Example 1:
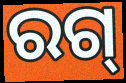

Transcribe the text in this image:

ରଗ୍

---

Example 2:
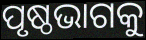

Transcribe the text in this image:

ପୃଷ୍ଠଭାଗକୁ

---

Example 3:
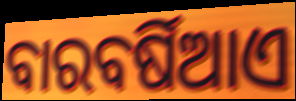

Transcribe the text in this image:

ବାରବର୍ଷିଆଏ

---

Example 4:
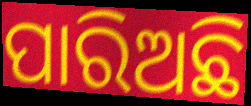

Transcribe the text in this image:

ପାରିଅଛି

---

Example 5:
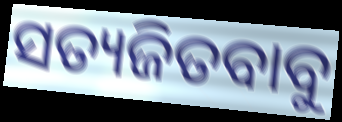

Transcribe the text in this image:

ସତ୍ୟଜିତବାବୁ